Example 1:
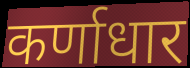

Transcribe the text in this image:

कर्णाधार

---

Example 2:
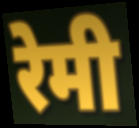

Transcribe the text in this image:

रेमी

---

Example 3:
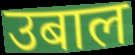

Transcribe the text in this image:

उबाल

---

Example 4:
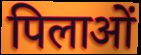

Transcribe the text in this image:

पिलाओं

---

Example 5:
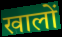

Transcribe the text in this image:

खालों